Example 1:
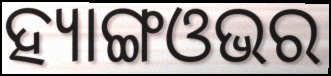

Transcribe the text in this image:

ହ୍ୟାଙ୍ଗଓଭର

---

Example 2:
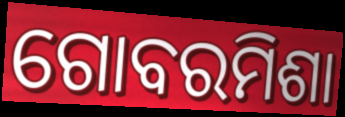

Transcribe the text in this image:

ଗୋବରମିଶା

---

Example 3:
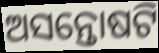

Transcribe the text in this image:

ଅସନ୍ତୋଷଟି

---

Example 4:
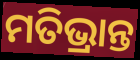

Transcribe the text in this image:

ମତିଭ୍ରାନ୍ତ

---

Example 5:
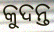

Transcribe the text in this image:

କୁଦନ୍ତ